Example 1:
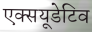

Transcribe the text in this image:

एक्सयूडेटिव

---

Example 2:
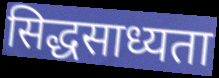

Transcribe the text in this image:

सिद्धसाध्यता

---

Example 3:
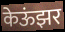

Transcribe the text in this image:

केऊंझर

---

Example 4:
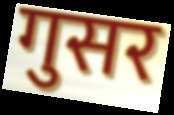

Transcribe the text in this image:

गुसर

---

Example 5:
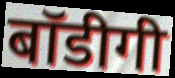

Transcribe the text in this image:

बॉडीगी